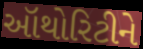
ઑથોરિટીને